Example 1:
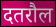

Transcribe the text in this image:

दतरौल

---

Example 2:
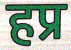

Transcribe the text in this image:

हप्र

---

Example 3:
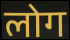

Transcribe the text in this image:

लोग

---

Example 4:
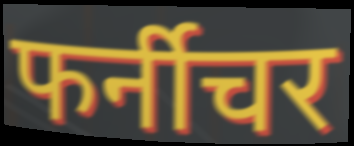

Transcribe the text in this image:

फर्नीचर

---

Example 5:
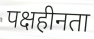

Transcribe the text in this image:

पक्षहीनता